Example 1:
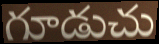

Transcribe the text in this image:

గూడుచు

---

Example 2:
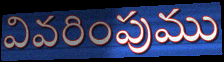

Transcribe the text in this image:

వివరింపుము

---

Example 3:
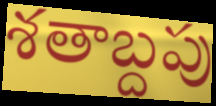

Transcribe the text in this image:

శతాబ్దపు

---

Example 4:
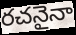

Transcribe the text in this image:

రచనైనా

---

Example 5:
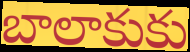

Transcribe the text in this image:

బాలాకుకు